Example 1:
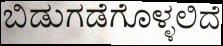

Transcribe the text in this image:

ಬಿಡುಗಡೆಗೊಳ್ಳಲಿದೆ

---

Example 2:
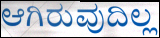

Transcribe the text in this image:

ಆಗಿರುವುದಿಲ್ಲ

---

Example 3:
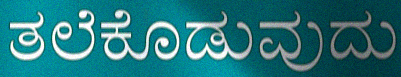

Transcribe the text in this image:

ತಲೆಕೊಡುವುದು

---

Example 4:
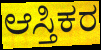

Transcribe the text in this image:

ಆಸ್ತಿಕರ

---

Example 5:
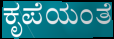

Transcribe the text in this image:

ಕೃಪೆಯಂತೆ